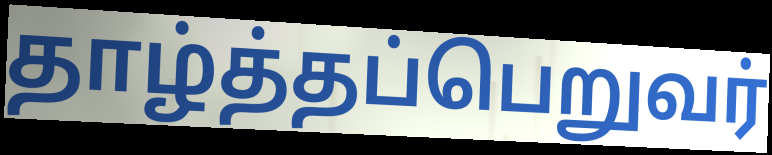
தாழ்த்தப்பெறுவர்